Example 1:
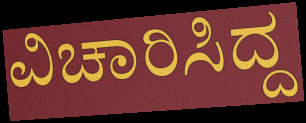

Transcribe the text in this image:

ವಿಚಾರಿಸಿದ್ದ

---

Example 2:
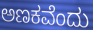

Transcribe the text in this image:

ಅಣಕವೆಂದು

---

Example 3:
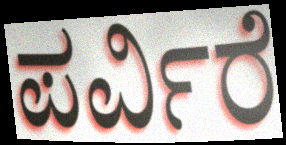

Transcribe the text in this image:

ಪರ್ವಿರೆ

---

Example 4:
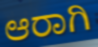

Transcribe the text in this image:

ಆರಾಗಿ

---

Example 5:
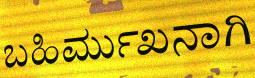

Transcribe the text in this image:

ಬಹಿರ್ಮುಖನಾಗಿ